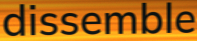
dissemble